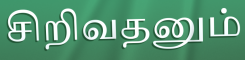
சிறிவதனும்